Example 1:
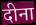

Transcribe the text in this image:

दीना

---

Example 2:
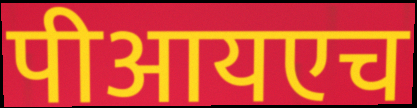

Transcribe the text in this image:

पीआयएच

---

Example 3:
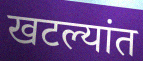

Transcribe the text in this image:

खटल्यांत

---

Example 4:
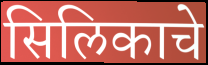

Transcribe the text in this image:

सिलिकाचे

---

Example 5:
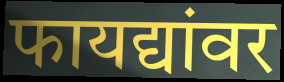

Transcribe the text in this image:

फायद्यांवर